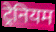
ट्रेनियम